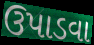
ઉપાડવા